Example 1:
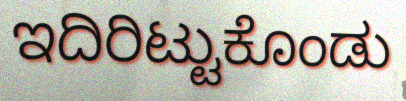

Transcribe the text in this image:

ಇದಿರಿಟ್ಟುಕೊಂಡು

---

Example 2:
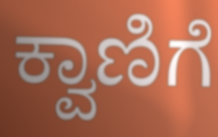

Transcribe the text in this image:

ಕ್ವಾಣಿಗೆ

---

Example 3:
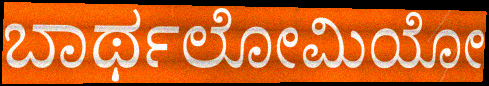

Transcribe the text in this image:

ಬಾರ್ಥಲೋಮಿಯೋ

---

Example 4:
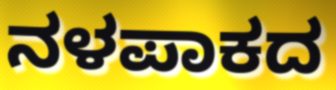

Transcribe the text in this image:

ನಳಪಾಕದ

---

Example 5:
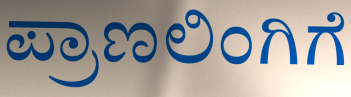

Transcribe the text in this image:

ಪ್ರಾಣಲಿಂಗಿಗೆ